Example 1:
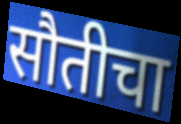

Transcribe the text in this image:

सौतीचा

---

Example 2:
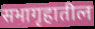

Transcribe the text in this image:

सभागृहातील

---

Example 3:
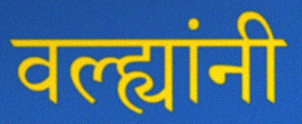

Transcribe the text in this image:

वल्ह्यांनी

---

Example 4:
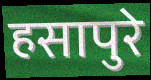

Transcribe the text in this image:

हसापुरे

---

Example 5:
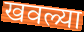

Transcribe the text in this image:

खवल्या